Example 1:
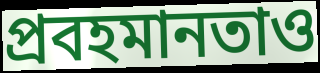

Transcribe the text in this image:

প্রবহমানতাও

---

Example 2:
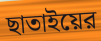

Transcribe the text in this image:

ছাতাইয়ের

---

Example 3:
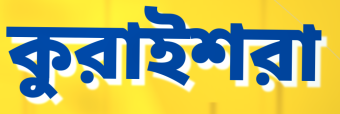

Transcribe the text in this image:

কুরাইশরা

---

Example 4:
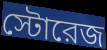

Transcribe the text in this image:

স্টোরেজ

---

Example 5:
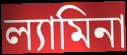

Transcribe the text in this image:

ল্যামিনা